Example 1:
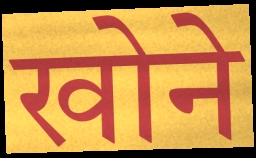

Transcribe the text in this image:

खोने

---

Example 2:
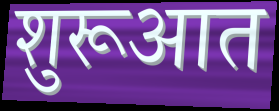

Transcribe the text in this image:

शुरूआत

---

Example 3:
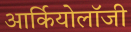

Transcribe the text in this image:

आर्कियोलॉजी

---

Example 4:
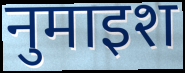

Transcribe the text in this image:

नुमाइश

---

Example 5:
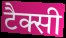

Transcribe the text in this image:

टैक्सी